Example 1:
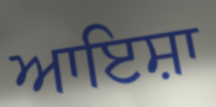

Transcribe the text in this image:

ਆਇਸ਼ਾ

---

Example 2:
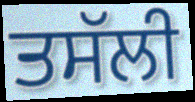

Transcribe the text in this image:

ਤਸੱਲੀ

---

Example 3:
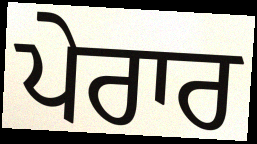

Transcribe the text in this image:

ਪੇਰਾਰ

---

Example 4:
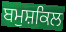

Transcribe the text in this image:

ਬਮੁਸ਼ਕਿਲ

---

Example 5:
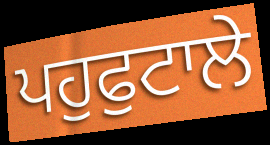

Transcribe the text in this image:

ਪਹੁਫੁਟਾਲੇ